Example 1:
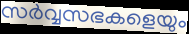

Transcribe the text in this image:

സർവ്വസഭകളെയും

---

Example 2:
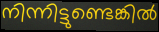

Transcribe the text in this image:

നിന്നിട്ടുണ്ടെങ്കിൽ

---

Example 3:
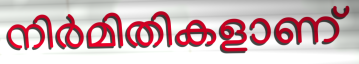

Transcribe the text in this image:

നിർമിതികളാണ്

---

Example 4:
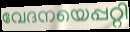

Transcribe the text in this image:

വേദനയെപ്പറ്റി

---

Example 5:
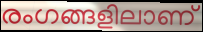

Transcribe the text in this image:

രംഗങ്ങളിലാണ്